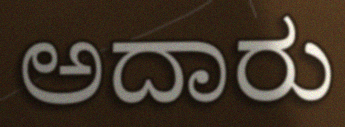
ಅದಾರು